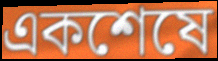
একশেষে